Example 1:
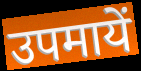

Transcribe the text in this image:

उपमायें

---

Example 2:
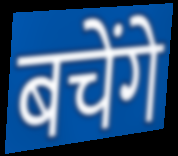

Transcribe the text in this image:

बचेंगे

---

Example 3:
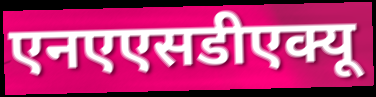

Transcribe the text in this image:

एनएएसडीएक्यू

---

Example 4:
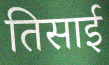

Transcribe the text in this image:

तिसाई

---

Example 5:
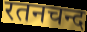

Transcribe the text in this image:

रतनचन्द